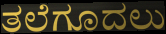
ತಲೆಗೂದಲು